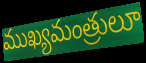
ముఖ్యమంత్రులూ